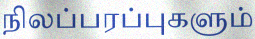
நிலப்பரப்புகளும்